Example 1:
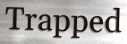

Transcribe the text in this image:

Trapped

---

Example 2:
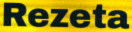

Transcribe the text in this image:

Rezeta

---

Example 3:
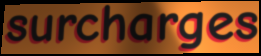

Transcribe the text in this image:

surcharges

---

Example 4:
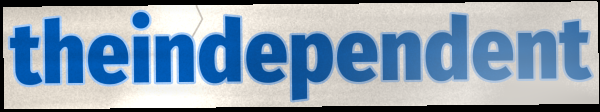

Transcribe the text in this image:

theindependent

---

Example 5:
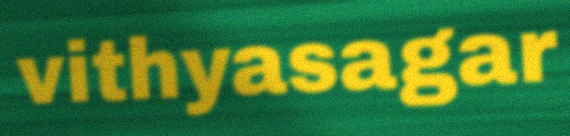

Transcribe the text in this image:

vithyasagar